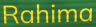
Rahima